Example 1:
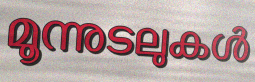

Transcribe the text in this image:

മൂന്നുടലുകൾ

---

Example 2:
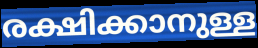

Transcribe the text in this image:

രക്ഷിക്കാനുള്ള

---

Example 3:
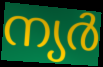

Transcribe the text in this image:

ന്യർ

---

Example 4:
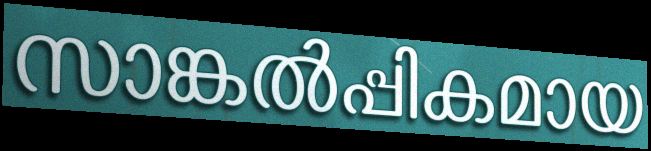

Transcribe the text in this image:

സാങ്കൽപ്പികമായ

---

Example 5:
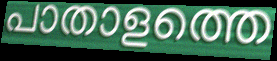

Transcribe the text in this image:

പാതാളത്തെ